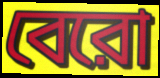
বেরো